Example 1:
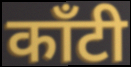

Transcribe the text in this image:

काँटी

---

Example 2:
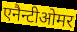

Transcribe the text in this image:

एनैन्टीओमर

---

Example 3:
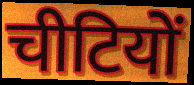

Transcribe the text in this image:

चीटियों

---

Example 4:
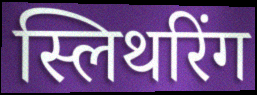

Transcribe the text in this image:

स्लिथरिंग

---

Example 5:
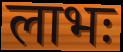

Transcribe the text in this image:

लाभः